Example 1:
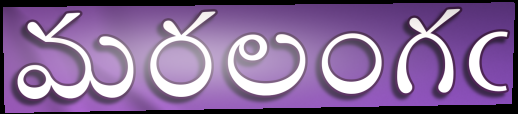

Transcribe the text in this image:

మరలంగఁ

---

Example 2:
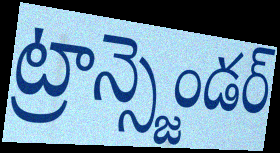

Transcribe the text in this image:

ట్రాన్స్జెండర్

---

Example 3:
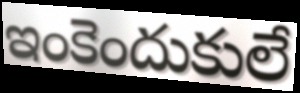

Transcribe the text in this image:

ఇంకెందుకులే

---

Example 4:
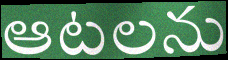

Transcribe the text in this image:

ఆటలను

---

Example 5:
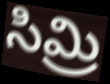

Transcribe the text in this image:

సిమ్రి